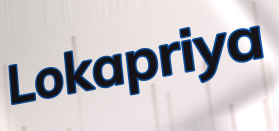
Lokapriya